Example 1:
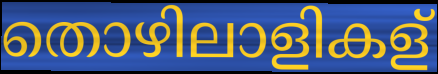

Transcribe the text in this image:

തൊഴിലാളികള്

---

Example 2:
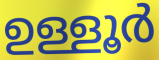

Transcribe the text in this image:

ഉള്ളൂർ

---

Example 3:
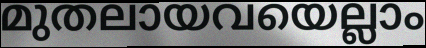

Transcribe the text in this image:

മുതലായവയെല്ലാം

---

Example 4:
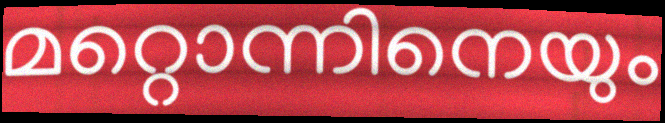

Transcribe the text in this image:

മറ്റൊന്നിനെയും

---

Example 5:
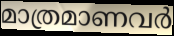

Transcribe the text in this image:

മാത്രമാണവർ